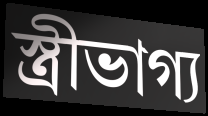
স্ত্রীভাগ্য